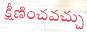
క్షీణించవచ్చు